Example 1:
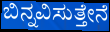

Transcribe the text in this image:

ಬಿನ್ನವಿಸುತ್ತೇನೆ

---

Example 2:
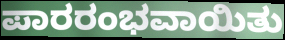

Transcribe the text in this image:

ಪಾರರಂಭವಾಯಿತು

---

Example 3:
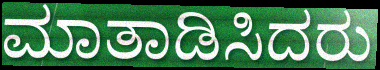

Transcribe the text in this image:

ಮಾತಾಡಿಸಿದರು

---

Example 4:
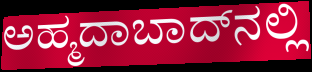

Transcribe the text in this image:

ಅಹ್ಮದಾಬಾದ್‍ನಲ್ಲಿ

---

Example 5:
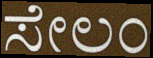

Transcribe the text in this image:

ಸೇಲಂ